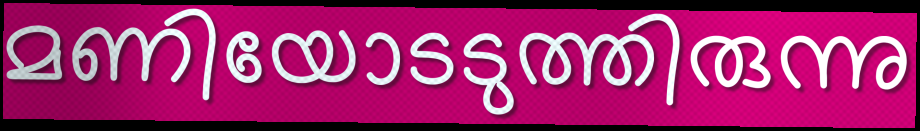
മണിയോടടുത്തിരുന്നു